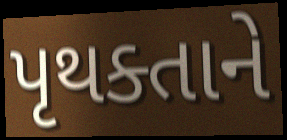
પૃથક્તાને